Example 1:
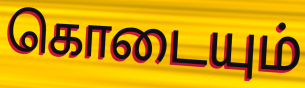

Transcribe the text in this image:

கொடையும்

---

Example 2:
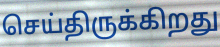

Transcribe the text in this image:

செய்திருக்கிறது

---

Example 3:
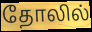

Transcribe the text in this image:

தோலில்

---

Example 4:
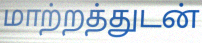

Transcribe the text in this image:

மாற்றத்துடன்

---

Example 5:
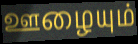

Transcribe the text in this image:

ஊழையும்